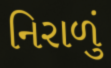
નિરાળું